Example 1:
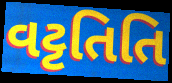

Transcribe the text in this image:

વટ્ટતિતિ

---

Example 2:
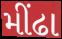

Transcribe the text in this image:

મીંઢા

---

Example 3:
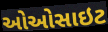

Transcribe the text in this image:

ઓઓસાઇટ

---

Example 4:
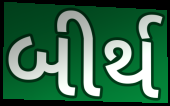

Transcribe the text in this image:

બીર્થ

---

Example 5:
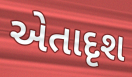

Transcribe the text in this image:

એતાદૃશ